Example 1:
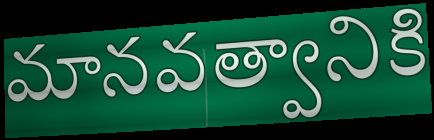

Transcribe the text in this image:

మానవత్వానికి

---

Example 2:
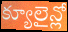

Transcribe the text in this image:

క్యూలైన్లో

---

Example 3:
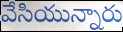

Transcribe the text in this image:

వేసియున్నారు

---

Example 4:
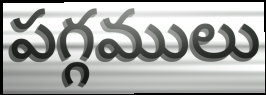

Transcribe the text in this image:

పగ్గములు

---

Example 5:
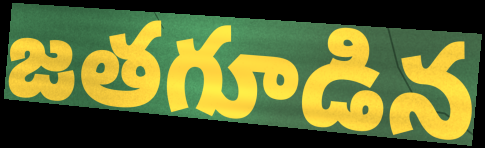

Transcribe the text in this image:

జతగూడిన